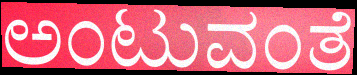
ಅಂಟುವಂತೆ